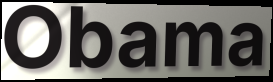
Obama